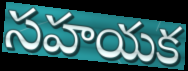
సహయక